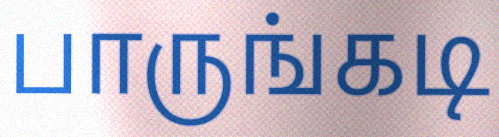
பாருங்கடி